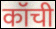
कॉची